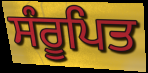
ਸੰਰੂਪਿਤ